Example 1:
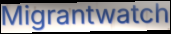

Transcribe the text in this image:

Migrantwatch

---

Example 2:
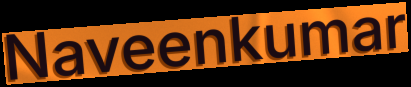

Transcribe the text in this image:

Naveenkumar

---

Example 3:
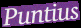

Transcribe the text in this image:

Puntius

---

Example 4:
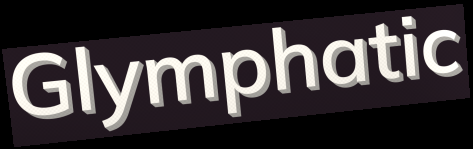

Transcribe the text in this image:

Glymphatic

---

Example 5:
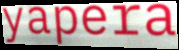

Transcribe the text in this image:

yapera